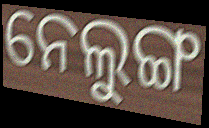
ନେଲୁଙ୍ଗ